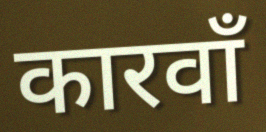
कारवाँ